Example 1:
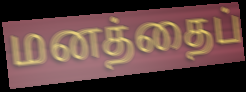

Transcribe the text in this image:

மனத்தைப்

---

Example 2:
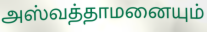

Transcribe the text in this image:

அஸ்வத்தாமனையும்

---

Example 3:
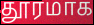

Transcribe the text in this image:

தூரமாக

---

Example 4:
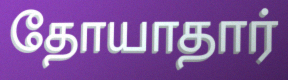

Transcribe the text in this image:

தோயாதார்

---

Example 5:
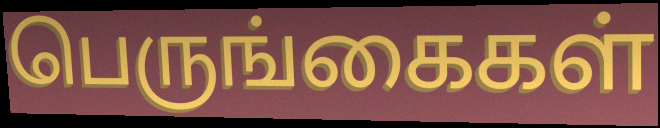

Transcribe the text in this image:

பெருங்கைகள்